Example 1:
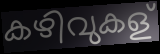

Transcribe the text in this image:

കഴിവുകള്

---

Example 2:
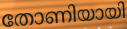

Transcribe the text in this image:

തോണിയായി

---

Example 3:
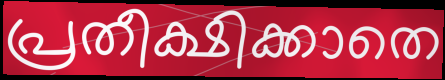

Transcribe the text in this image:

പ്രതീക്ഷിക്കാതെ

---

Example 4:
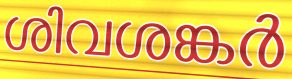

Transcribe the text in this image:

ശിവശങ്കർ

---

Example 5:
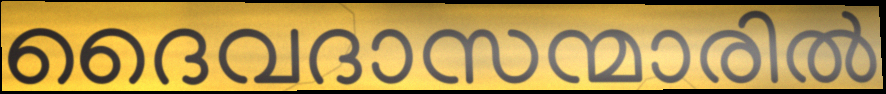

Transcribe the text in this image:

ദൈവദാസന്മാരിൽ